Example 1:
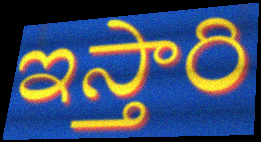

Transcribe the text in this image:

ఇస్తారి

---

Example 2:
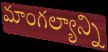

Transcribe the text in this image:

మాంగల్యాన్ని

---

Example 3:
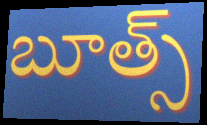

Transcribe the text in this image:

బూత్స్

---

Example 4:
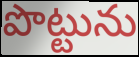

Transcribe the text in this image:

పొట్టును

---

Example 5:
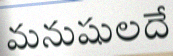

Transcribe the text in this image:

మనుషులదే